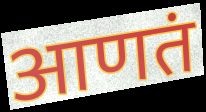
आणतं